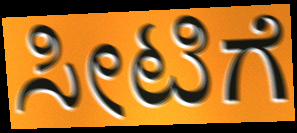
ಸೀಟಿಗೆ